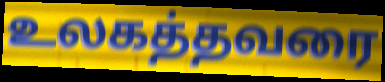
உலகத்தவரை